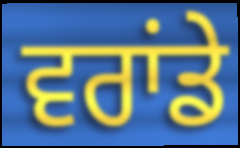
ਵਰਾਂਡੇ